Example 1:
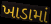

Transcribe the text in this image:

ખાડામાં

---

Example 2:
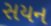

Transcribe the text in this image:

સયન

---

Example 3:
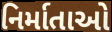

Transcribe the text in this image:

નિર્માતાઓ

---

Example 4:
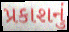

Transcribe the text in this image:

પ્રકાશનું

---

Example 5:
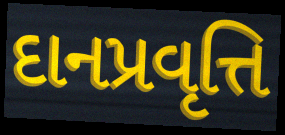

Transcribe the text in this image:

દાનપ્રવૃત્તિ